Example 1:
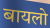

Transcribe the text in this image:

बायलो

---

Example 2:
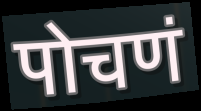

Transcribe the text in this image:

पोचणं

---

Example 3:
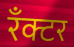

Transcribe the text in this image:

रँक्टर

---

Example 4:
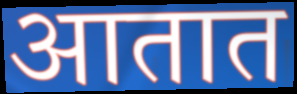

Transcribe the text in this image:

आतात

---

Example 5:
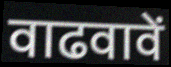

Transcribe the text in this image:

वाढवावें